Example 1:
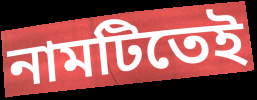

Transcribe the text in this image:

নামটিতেই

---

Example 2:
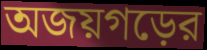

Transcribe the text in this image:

অজয়গড়ের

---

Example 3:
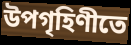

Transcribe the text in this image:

উপগৃহিণীতে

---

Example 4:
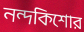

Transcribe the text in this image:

নন্দকিশোর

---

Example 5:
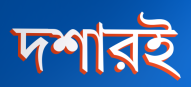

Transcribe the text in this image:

দশারই